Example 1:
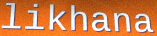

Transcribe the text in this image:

likhana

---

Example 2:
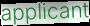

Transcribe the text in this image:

applicant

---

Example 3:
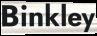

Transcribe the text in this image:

Binkley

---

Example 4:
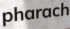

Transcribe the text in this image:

pharach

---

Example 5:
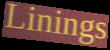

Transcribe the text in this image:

Linings